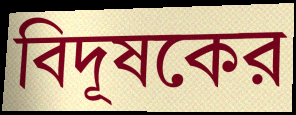
বিদূষকের